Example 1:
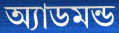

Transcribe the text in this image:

অ্যাডমন্ড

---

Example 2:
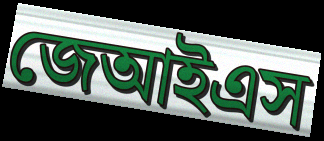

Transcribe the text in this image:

জেআইএস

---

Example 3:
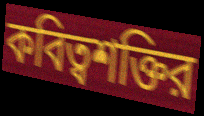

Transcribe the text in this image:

কবিত্বশক্তির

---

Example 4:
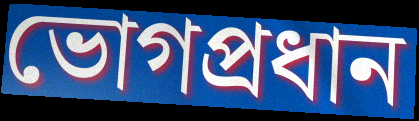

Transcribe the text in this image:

ভোগপ্রধান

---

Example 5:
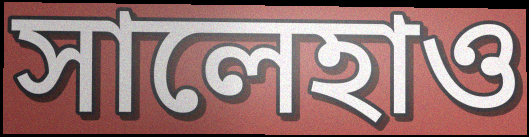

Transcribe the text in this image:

সালেহাও